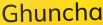
Ghuncha